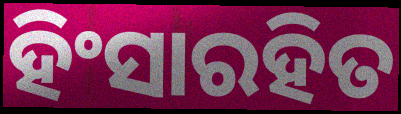
ହିଂସାରହିତ